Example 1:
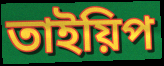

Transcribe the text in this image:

তাইয়িপ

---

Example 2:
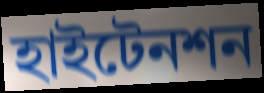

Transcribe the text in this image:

হাইটেনশন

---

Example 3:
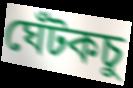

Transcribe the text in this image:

ঘেঁটকচু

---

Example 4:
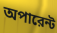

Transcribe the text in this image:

অপারেন্ট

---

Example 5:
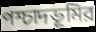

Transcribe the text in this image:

পশ্চাদভূমির